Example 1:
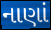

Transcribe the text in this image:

નાણાં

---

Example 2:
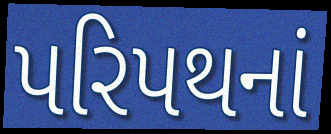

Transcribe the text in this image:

પરિપથનાં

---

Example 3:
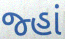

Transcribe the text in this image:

જ્હાં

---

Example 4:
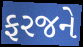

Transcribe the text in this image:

ફરજને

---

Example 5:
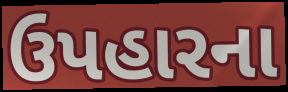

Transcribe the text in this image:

ઉપહારના